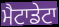
ਮੈਟਾਡੇਟਾ